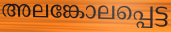
അലങ്കോലപ്പെട്ട